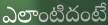
ఎలాంటిదంటే